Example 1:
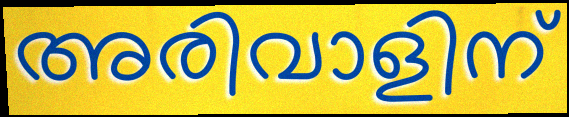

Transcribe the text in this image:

അരിവാളിന്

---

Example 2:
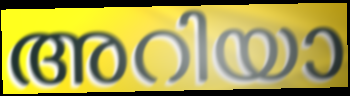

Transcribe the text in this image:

അറിയാ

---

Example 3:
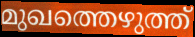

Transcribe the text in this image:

മുഖത്തെഴുത്ത്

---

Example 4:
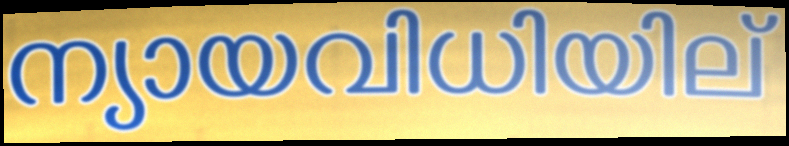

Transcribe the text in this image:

ന്യായവിധിയില്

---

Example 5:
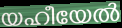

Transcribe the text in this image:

യഹീയേൽ